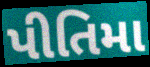
પીતિમા